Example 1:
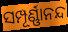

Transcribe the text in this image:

ସମ୍ପୂର୍ଣ୍ଣାନନ୍ଦ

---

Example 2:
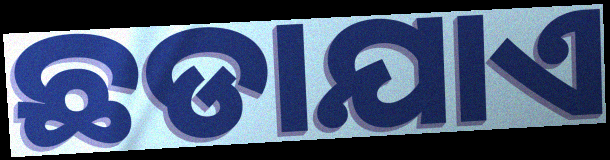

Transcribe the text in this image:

ଛଡାଯାଏ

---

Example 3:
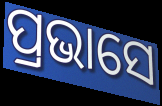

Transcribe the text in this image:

ପ୍ରଭାସେ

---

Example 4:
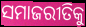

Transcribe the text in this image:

ସମାଜରୀତିକୁ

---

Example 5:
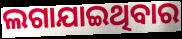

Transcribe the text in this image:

ଲଗାଯାଇଥିବାର